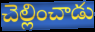
చెల్లించాడు